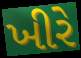
ખીરે